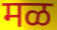
मळ